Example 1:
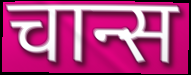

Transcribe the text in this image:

चान्स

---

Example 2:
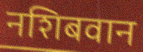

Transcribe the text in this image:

नशिबवान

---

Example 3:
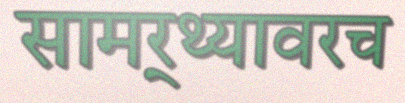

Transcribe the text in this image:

सामर्थ्यावरच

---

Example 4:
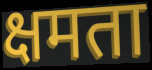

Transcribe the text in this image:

क्षमता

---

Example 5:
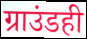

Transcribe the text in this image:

ग्राउंडही